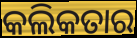
କଲିକତାର